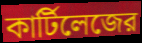
কার্টিলেজের